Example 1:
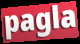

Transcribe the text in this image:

pagla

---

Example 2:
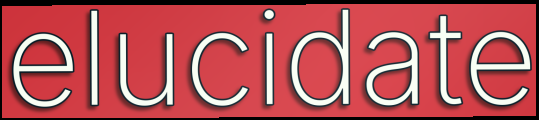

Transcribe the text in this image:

elucidate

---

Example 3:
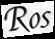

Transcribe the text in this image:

Ros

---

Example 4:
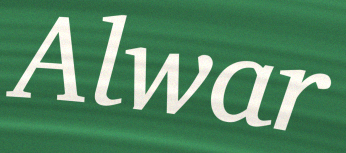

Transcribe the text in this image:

Alwar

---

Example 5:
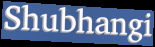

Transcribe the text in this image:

Shubhangi